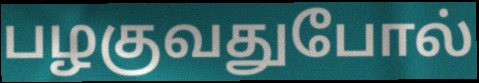
பழகுவதுபோல்